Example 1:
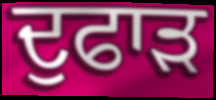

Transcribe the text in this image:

ਦੁਫਾੜ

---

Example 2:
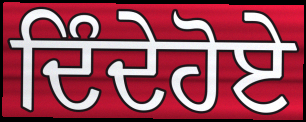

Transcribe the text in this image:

ਦਿੰਦੇਹੋਏ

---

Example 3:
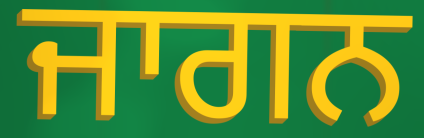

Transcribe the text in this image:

ਜਾਗਨ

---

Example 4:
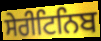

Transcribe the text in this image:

ਸੇਰੀਟਿਨਿਬ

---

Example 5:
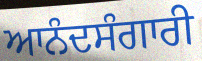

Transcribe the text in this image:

ਆਨੰਦਸੰਗਾਰੀ